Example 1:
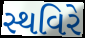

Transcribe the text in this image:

સ્થવિરે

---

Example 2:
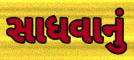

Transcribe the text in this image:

સાધવાનું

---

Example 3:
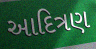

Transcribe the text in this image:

આદિત્રણ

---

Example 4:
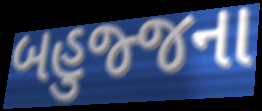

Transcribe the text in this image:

બહુજ્જના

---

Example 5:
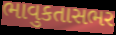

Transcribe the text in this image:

ભાવુકતાસભર